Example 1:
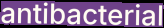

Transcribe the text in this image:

antibacterial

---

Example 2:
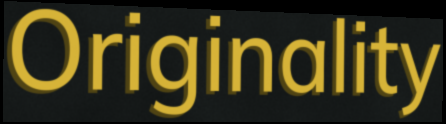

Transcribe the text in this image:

Originality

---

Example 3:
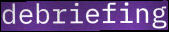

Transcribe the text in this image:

debriefing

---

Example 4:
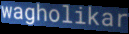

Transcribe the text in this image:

wagholikar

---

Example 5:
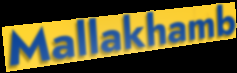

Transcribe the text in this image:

Mallakhamb